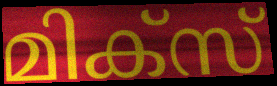
മിക്സ്